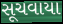
સૂચવાયા